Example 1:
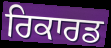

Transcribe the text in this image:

ਰਿਕਾਰਡ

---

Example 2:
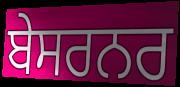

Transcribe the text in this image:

ਬੇਸਰਨਰ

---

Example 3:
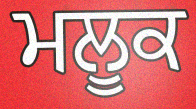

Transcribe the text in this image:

ਮਲੂਕ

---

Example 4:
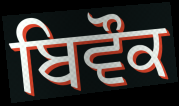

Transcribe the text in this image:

ਬਿਵੌਕ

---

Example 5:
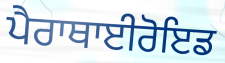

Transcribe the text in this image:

ਪੈਰਾਥਾਈਰੋਇਡ